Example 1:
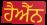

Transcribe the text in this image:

ਹੈਐੱਨ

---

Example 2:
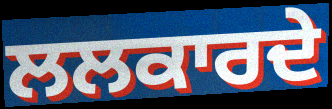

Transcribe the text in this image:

ਲਲਕਾਰਦੇ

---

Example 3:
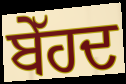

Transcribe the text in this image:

ਬੇੱਹਦ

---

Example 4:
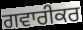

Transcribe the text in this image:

ਗਵਾਰੀਕਰ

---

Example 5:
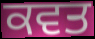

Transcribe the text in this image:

ਕਵਤ